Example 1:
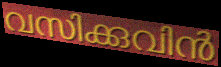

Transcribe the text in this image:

വസിക്കുവിൻ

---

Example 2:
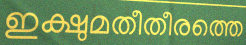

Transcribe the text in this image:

ഇക്ഷുമതീതീരത്തെ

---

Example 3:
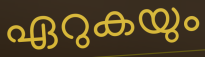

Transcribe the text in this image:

ഏറുകയും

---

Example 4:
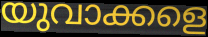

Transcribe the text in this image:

യുവാക്കളെ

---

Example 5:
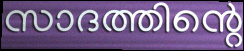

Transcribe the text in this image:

സാദത്തിന്റെ